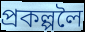
প্ৰকল্পলৈ